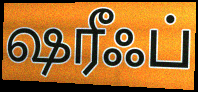
ஷரீஃப்